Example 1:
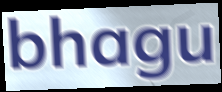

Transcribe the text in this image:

bhagu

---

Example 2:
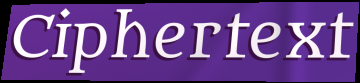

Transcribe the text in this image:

Ciphertext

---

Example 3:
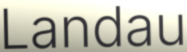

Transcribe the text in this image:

Landau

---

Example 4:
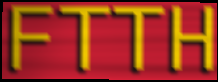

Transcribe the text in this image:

FTTH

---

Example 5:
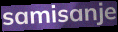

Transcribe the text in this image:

samisanje